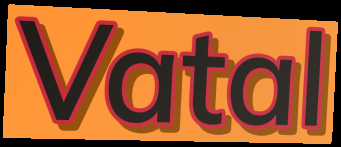
Vatal